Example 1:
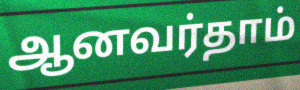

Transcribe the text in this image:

ஆனவர்தாம்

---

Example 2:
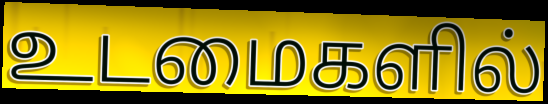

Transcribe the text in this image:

உடமைகளில்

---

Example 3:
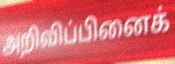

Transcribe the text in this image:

அறிவிப்பினைக்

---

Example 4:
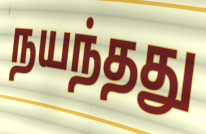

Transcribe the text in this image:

நயந்தது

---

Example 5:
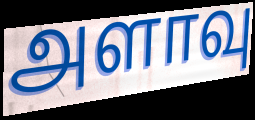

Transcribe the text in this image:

அளாவு